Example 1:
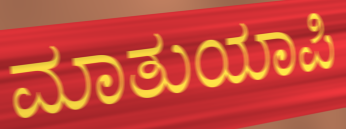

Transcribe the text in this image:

ಮಾತುಯಾಪಿ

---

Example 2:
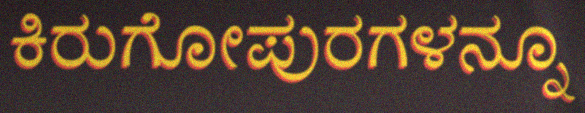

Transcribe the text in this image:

ಕಿರುಗೋಪುರಗಳನ್ನೂ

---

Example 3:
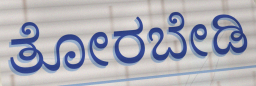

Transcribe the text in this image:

ತೋರಬೇಡಿ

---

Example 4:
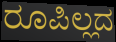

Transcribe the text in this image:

ರೂಪಿಲ್ಲದ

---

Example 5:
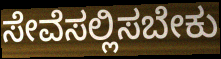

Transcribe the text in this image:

ಸೇವೆಸಲ್ಲಿಸಬೇಕು